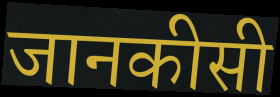
जानकीसी